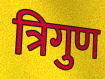
त्रिगुण